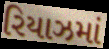
રિયાઝમાં